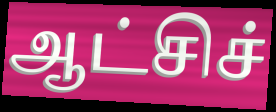
ஆட்சிச்